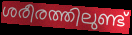
ശരീരത്തിലുണ്ട്